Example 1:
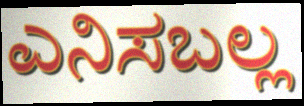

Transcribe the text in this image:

ಎನಿಸಬಲ್ಲ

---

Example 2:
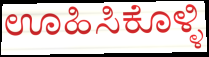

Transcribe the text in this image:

ಊಹಿಸಿಕೊಳ್ಳಿ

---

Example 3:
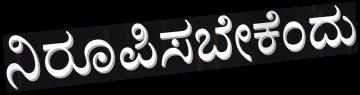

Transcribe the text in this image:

ನಿರೂಪಿಸಬೇಕೆಂದು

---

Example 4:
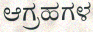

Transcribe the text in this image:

ಆಗ್ರಹಗಳ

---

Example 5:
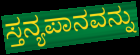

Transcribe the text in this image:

ಸ್ತನ್ಯಪಾನವನ್ನು